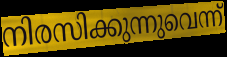
നിരസിക്കുന്നുവെന്ന്